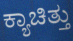
ಕ್ಯಾಚಿತ್ತು